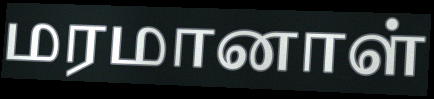
மரமானாள்